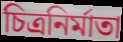
চিত্ৰনিৰ্মাতা